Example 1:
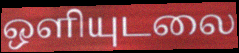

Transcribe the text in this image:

ஒளியுடலை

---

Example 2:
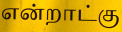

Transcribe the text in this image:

என்றாட்கு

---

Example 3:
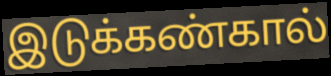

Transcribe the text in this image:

இடுக்கண்கால்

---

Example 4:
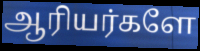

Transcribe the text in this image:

ஆரியர்களே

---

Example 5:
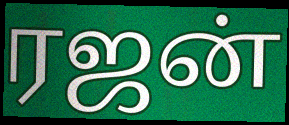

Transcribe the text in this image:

ரஜன்